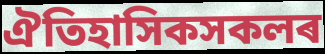
ঐতিহাসিকসকলৰ